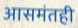
आसमंतही